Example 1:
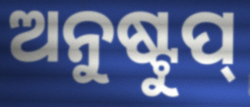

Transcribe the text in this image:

ଅନୁଷ୍ଟୁପ୍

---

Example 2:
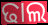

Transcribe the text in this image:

ଢାଲ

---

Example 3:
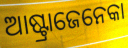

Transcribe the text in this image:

ଆଷ୍ଟ୍ରାଜେନେକା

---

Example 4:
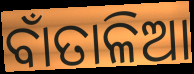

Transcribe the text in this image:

ବାଁତାଳିଆ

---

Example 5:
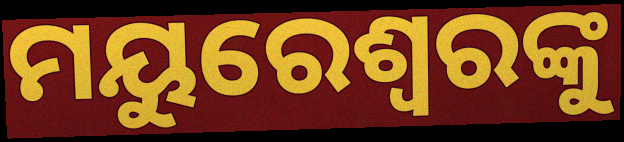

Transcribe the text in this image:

ମୟୁରେଶ୍ବରଙ୍କୁ